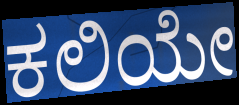
ಕಲಿಯೇ